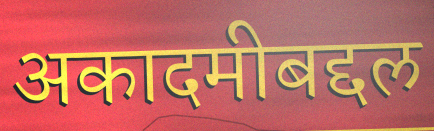
अकादमीबद्दल